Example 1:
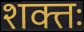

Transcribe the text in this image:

शक्तः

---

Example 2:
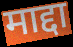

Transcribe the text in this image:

माद्दा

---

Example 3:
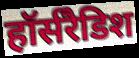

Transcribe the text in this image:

हॉर्सरैडिश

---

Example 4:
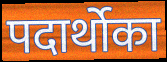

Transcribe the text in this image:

पदार्थोका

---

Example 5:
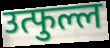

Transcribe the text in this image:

उत्फुल्ल